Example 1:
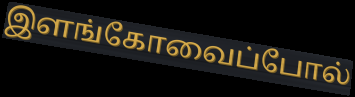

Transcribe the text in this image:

இளங்கோவைப்போல்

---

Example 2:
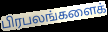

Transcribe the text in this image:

பிரபலங்களைக்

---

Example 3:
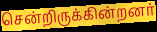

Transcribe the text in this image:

சென்றிருக்கின்றனர்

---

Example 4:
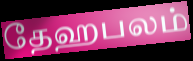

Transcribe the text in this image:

தேஹபலம்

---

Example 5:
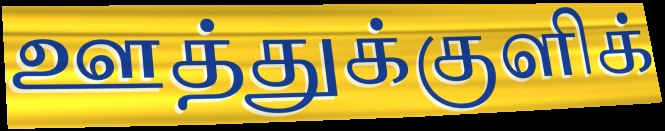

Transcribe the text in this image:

ஊத்துக்குளிக்